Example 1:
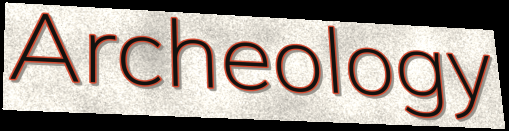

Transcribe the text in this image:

Archeology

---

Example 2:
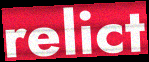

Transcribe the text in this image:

relict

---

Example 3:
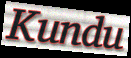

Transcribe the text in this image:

Kundu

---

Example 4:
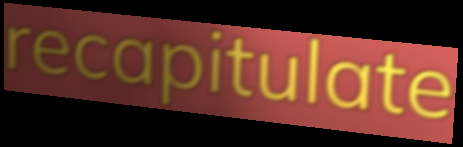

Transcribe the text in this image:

recapitulate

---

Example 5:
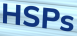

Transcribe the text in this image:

HSPs